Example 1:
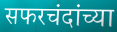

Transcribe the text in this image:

सफरचंदांच्या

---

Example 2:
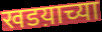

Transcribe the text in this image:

खडय़ाच्या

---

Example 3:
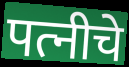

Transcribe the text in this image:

पत्‍नीचे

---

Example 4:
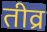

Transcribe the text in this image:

तीव्र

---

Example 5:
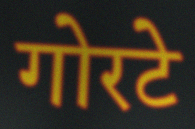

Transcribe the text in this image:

गोरटे